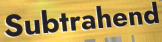
Subtrahend